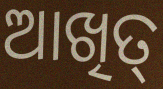
ଆଖିତ୍